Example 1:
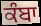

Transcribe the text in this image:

ਕੰਬਾ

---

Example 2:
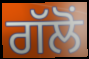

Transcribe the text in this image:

ਗੱਲੋਂ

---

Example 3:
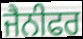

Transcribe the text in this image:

ਜੈਨੀਫਰ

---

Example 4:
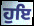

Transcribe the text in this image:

ਹੁਇ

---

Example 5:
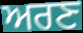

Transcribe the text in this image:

ਅਰਣ